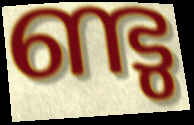
ണ്ടു